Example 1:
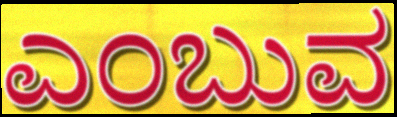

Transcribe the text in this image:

ಎಂಬುವ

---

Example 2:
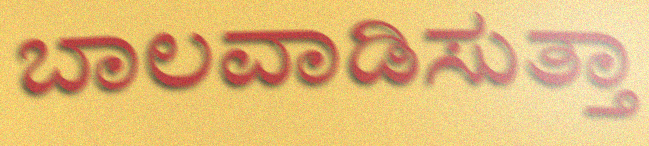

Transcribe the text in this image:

ಬಾಲವಾಡಿಸುತ್ತಾ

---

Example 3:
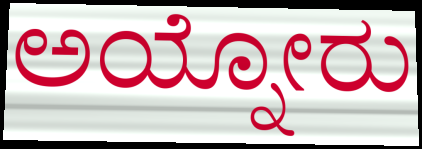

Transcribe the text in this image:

ಅಯ್ನೋರು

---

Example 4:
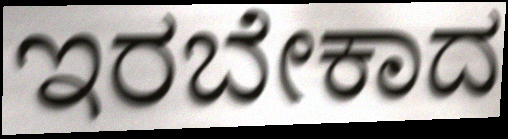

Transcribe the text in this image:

ಇರಬೇಕಾದ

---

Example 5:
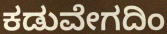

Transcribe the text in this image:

ಕಡುವೇಗದಿಂ